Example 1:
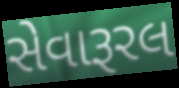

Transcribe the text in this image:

સેવારૂરલ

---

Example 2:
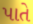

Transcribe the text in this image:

પાતે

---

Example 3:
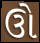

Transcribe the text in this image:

ઉો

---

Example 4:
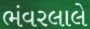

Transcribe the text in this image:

ભંવરલાલે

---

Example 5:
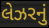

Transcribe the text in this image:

લેઝરનું